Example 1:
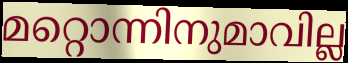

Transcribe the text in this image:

മറ്റൊന്നിനുമാവില്ല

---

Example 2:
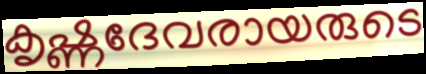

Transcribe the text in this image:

കൃഷ്ണദേവരായരുടെ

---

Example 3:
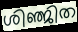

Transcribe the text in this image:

ശിഞ്ജിത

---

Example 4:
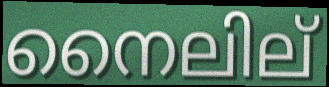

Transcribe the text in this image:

നൈലില്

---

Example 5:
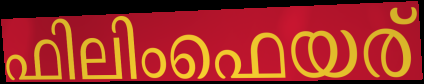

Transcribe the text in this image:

ഫിലിംഫെയര്